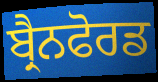
ਬ੍ਰੈਨਫੋਰਡ